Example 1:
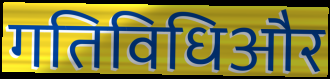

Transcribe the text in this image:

गतिविधिऔर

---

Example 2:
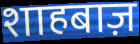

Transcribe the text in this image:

शाहबाज़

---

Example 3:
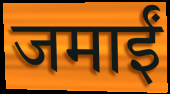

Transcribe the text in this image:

जमाईं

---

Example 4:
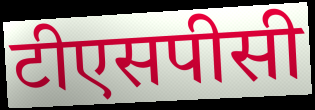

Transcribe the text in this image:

टीएसपीसी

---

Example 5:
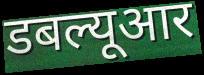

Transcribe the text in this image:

डबल्यूआर